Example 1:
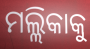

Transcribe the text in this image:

ମଲ୍ଲିକାକୁ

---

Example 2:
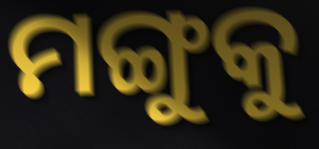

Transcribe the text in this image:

ମଙ୍ଗୁକୁ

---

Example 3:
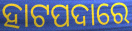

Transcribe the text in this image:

ହାଟପଦାରେ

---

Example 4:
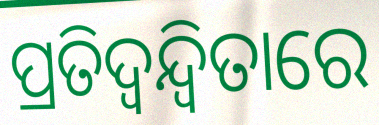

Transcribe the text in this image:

ପ୍ରତିଦ୍ୱନ୍ଦ୍ବିତାରେ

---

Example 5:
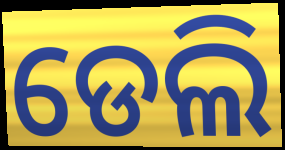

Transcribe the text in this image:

ଡେଲି